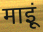
माइूं